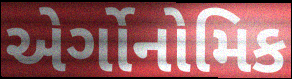
એર્ગોનોમિક